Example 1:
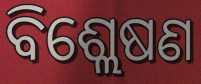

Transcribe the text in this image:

ବିଶ୍ଲେଷଣ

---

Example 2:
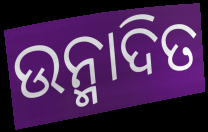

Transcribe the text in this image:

ଉନ୍ମାଦିତ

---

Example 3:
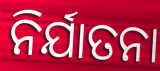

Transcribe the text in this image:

ନିର୍ଯାତନା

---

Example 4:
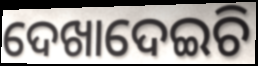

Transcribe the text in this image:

ଦେଖାଦେଇଚି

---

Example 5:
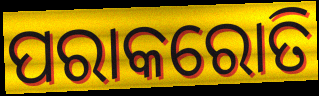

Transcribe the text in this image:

ପରାକରୋତି